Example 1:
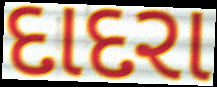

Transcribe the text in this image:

દાદરા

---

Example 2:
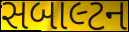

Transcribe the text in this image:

સબાલ્ટન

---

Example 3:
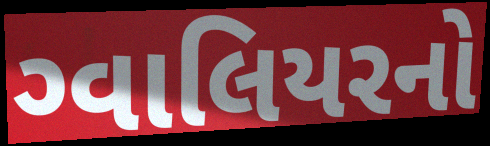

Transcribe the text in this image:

ગ્વાલિયરનો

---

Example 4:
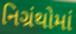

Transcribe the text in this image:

નિગ્રંથોમાં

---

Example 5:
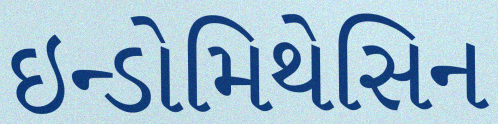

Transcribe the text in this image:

ઇન્ડોમિથેસિન